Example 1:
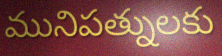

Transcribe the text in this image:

మునిపత్నులకు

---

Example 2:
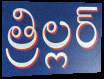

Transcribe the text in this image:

త్రిల్లర్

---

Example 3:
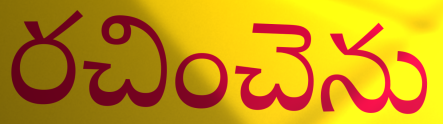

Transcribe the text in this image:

రచించెను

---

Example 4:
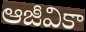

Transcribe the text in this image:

ఆజీవికా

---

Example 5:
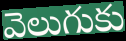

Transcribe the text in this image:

వెలుగుకు